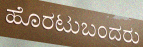
ಹೊರಟುಬಂದರು